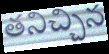
తనిచ్చిన